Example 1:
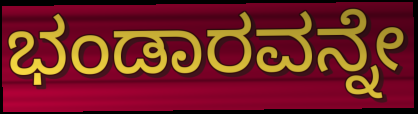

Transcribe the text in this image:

ಭಂಡಾರವನ್ನೇ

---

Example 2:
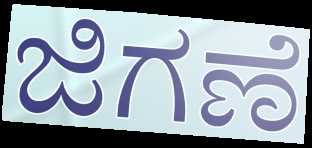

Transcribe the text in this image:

ಜಿಗಣೆ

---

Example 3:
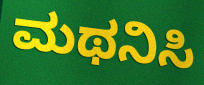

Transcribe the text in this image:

ಮಥನಿಸಿ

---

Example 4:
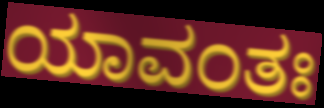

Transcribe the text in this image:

ಯಾವಂತಃ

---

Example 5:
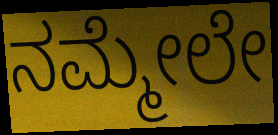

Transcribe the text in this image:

ನಮ್ಮೇಲೇ